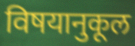
विषयानुकूल